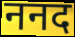
ननद